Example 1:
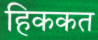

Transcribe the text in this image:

हिककत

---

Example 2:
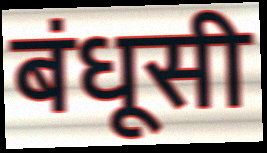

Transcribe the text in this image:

बंधूसी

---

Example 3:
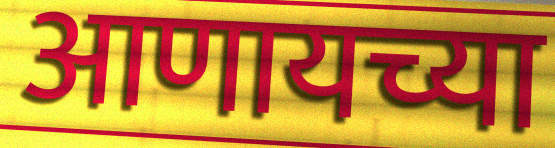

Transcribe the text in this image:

आणायच्या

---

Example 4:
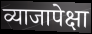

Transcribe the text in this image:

व्याजापेक्षा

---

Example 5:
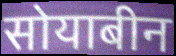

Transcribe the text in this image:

सोयाबीन